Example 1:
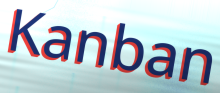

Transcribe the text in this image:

Kanban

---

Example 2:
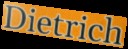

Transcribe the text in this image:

Dietrich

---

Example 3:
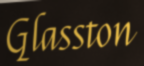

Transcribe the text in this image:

Glasston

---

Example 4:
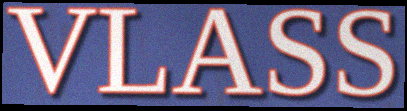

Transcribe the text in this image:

VLASS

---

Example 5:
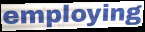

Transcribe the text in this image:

employing